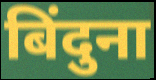
बिंदुना